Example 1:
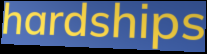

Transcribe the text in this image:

hardships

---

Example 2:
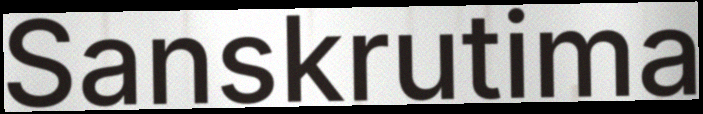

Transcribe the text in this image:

Sanskrutima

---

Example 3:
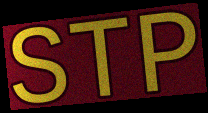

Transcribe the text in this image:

STP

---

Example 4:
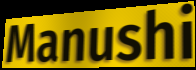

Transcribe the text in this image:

Manushi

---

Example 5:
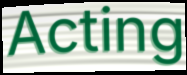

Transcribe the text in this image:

Acting